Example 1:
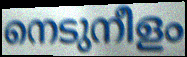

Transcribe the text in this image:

നെടുനീളം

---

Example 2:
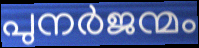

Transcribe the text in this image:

പുനർജന്മം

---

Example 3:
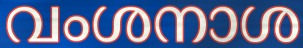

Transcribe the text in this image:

വംശനാശ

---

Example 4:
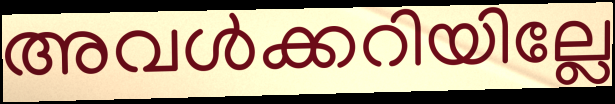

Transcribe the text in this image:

അവൾക്കറിയില്ലേ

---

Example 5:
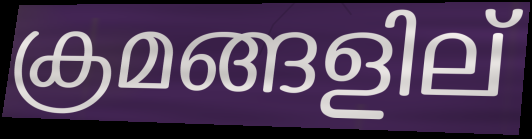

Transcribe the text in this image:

ക്രമങ്ങളില്